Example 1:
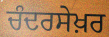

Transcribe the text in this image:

ਚੰਦਰਸੇਖ਼ਰ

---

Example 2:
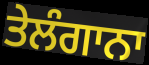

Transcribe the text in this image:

ਤੇਲੰਗਾਨਾ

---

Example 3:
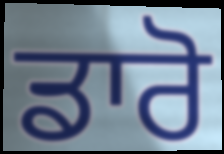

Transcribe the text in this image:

ਡਾਰੋ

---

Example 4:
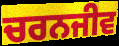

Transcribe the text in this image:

ਚਰਨਜੀਵ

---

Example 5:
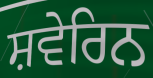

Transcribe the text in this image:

ਸ਼ਵੇਰਿਨ